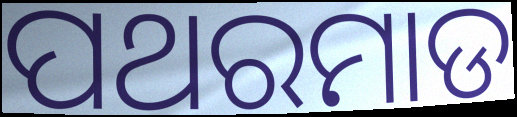
ପଥରମାଡ